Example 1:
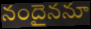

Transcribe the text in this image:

నందైననూ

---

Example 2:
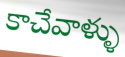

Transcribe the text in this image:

కాచేవాళ్ళు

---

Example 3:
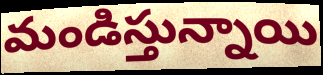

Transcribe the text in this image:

మండిస్తున్నాయి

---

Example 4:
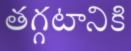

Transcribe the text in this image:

తగ్గటానికి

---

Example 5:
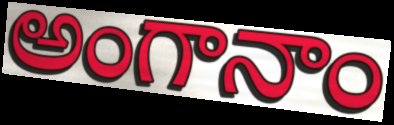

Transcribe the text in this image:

అంగానాం